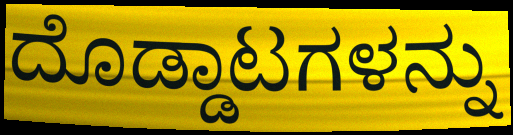
ದೊಡ್ಡಾಟಗಳನ್ನು